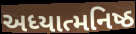
અધ્યાત્મનિષ્ઠ